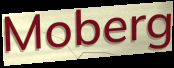
Moberg